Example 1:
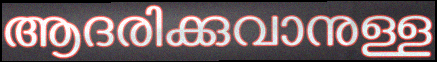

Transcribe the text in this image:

ആദരിക്കുവാനുള്ള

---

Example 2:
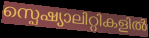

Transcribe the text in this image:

സ്പെഷ്യാലിറ്റികളിൽ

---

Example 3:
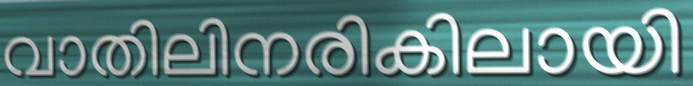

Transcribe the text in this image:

വാതിലിനരികിലായി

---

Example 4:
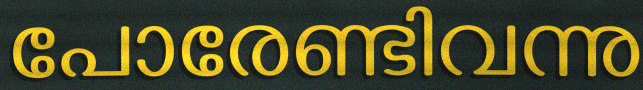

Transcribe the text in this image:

പോരേണ്ടിവന്നു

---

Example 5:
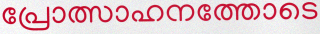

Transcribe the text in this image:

പ്രോത്സാഹനത്തോടെ